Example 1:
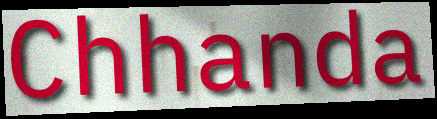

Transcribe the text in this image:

Chhanda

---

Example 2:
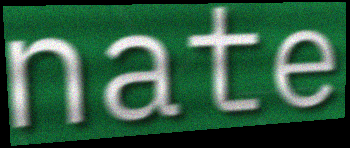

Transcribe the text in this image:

nate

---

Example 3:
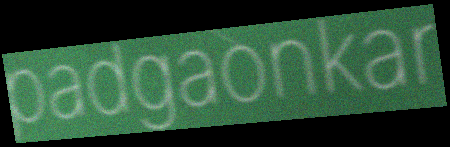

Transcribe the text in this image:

padgaonkar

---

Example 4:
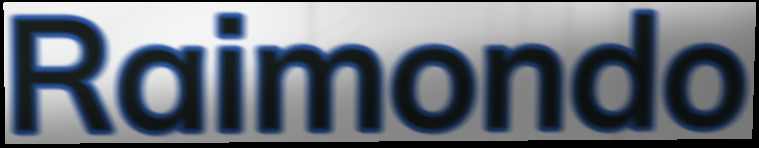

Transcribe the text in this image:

Raimondo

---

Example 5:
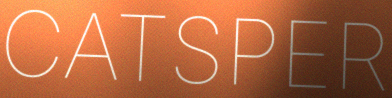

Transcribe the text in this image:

CATSPER